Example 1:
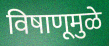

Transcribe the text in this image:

विषाणूमुळे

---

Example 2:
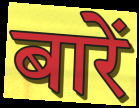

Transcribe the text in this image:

बारें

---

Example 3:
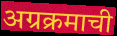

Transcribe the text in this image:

अग्रक्रमाची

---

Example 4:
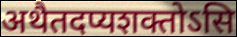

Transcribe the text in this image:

अथैतदप्यशक्तोऽसि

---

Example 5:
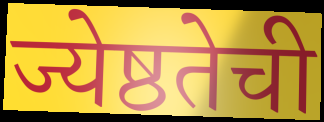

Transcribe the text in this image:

ज्येष्ठतेची